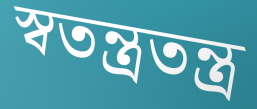
স্বতন্ত্ৰতন্ত্ৰ